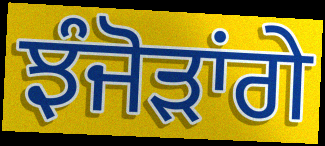
ਝੰਜੋੜਾਂਗੇ